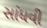
સાંધવી